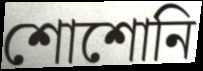
শোশোনি